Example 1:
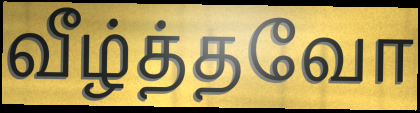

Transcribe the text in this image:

வீழ்த்தவோ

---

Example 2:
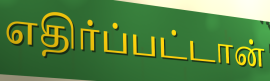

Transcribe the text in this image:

எதிர்ப்பட்டான்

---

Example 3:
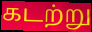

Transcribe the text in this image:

கடற்று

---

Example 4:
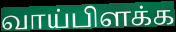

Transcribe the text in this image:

வாய்பிளக்க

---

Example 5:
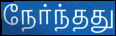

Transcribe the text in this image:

நேர்ந்தது